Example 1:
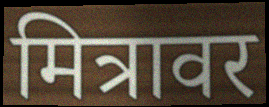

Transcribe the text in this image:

मित्रावर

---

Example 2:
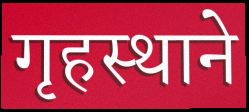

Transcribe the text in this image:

गृहस्थाने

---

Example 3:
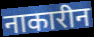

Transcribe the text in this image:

नाकारीन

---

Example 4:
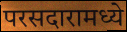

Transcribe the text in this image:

परसदारामध्ये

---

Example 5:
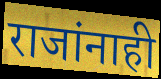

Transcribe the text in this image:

राजांनाही